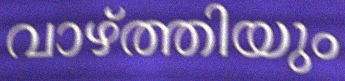
വാഴ്ത്തിയും